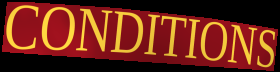
CONDITIONS